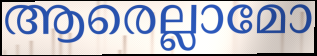
ആരെല്ലാമോ